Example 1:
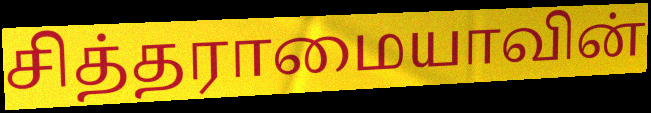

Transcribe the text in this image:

சித்தராமையாவின்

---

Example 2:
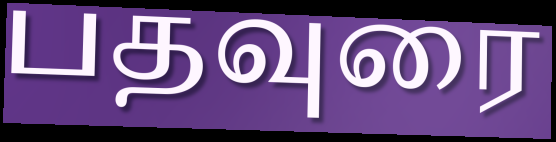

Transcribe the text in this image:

பதவுரை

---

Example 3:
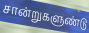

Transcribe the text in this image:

சான்றுகளுண்டு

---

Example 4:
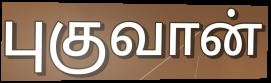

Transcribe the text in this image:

புகுவான்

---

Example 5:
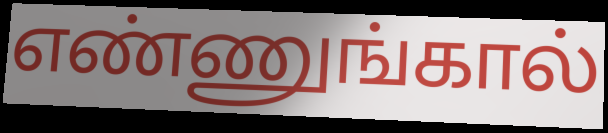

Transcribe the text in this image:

எண்ணுங்கால்